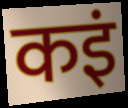
कइं